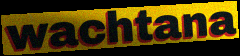
wachtana